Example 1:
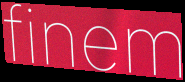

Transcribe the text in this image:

finem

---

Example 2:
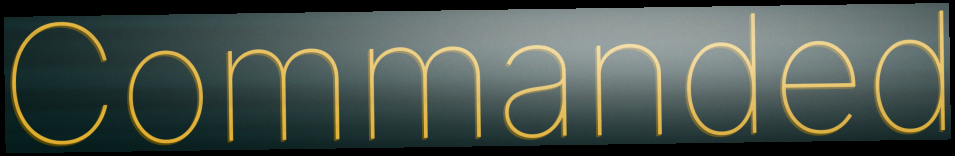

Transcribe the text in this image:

Commanded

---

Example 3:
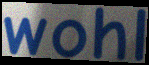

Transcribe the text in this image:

wohl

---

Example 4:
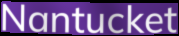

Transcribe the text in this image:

Nantucket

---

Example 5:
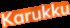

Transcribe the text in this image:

Karukku